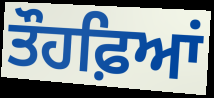
ਤੌਹਫ਼ਿਆਂ